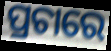
ପ୍ରଚାରେ